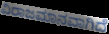
ವಿರಾಜಮಾನವಾಗಿದೆ